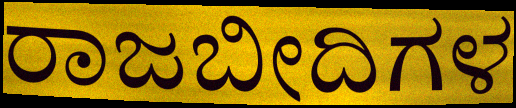
ರಾಜಬೀದಿಗಳ